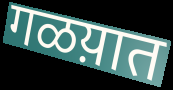
गळय़ात